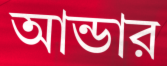
আন্ডার